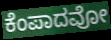
ಕೆಂಪಾದವೋ